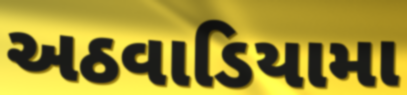
અઠવાડિયામા